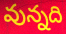
వున్నది